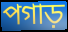
পগাড়